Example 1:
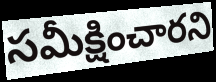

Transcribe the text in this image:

సమీక్షించారని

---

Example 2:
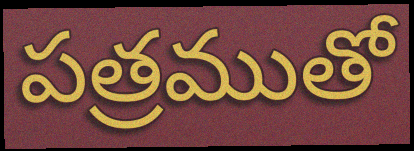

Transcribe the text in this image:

పత్రముతో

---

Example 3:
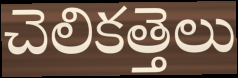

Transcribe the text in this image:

చెలికత్తెలు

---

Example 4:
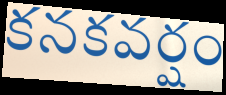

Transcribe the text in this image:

కనకవర్షం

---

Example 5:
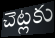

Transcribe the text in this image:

చెట్లకు